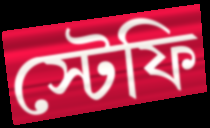
স্টেফি